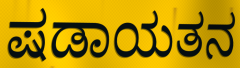
ಷಡಾಯತನ